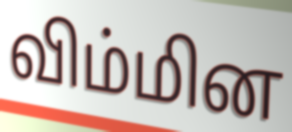
விம்மின